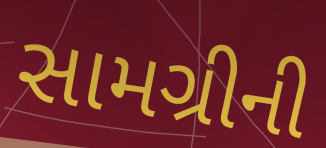
સામગ્રીની